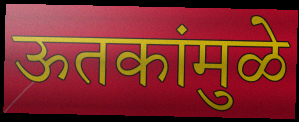
ऊतकांमुळे